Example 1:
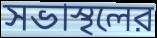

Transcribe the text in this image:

সভাস্থলের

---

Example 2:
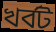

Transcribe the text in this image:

খর্বট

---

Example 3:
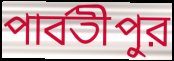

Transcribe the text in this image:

পার্বতীপুর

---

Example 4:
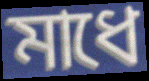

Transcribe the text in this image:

মাধে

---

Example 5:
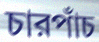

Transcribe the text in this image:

চারপাঁচ